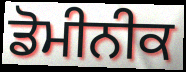
ਡੋਮੀਨੀਕ